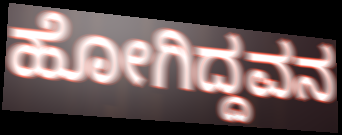
ಹೋಗಿದ್ದವನ